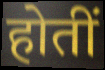
होतीं